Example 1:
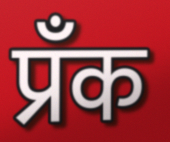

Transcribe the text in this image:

प्रँक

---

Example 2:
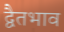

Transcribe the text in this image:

द्वैतभाव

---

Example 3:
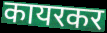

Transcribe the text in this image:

कायरकर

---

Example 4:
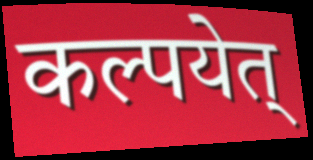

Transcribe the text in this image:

कल्पयेत्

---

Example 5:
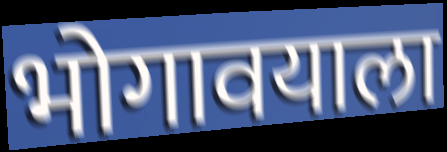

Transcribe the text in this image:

भोगावयाला